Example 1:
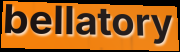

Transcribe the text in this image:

bellatory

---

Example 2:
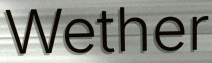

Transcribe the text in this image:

Wether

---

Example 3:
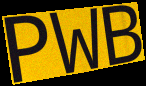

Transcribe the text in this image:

PWB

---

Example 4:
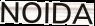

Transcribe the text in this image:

NOIDA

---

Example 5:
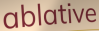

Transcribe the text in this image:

ablative